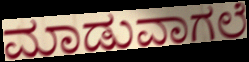
ಮಾಡುವಾಗಲೆ